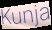
Kunja